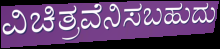
ವಿಚಿತ್ರವೆನಿಸಬಹುದು